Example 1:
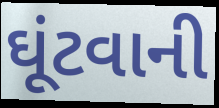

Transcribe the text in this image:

ઘૂંટવાની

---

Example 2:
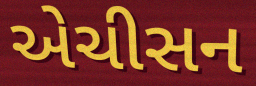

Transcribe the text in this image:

એચીસન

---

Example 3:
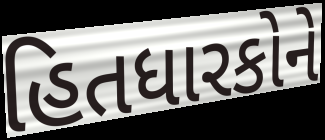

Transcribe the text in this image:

હિતધારકોને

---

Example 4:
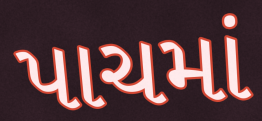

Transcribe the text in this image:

પાચમાં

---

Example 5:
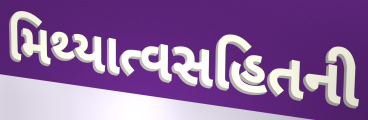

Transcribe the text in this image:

મિથ્યાત્વસહિતની